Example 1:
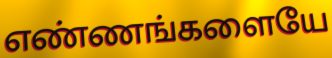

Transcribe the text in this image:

எண்ணங்களையே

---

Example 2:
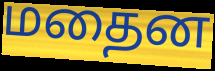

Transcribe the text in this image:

மதைன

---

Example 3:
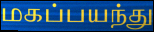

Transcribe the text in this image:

மகப்பயந்து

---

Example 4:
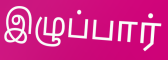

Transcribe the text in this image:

இழுப்பார்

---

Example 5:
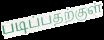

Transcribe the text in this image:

படிப்பதற்குள்